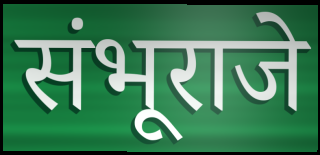
संभूराजे